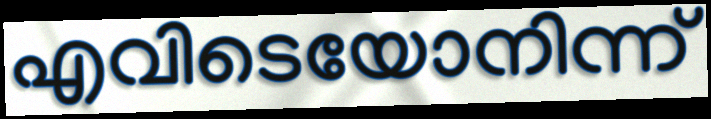
എവിടെയോനിന്ന്